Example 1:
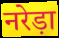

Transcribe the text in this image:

नरेड़ा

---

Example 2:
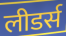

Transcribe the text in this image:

लीडर्स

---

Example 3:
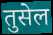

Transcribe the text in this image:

तुसेल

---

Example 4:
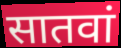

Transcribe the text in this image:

सातवां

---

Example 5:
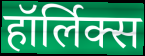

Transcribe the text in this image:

हॉर्लिक्स